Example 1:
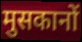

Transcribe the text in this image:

मुसकानों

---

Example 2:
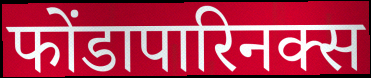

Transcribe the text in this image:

फोंडापारिनक्स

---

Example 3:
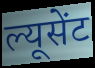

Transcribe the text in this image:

ल्यूसेंट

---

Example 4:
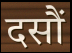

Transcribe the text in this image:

दसौं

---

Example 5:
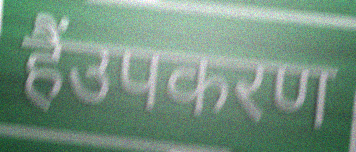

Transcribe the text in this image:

हैंउपकरण